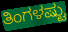
ತಿಂಗಳಷ್ಟು